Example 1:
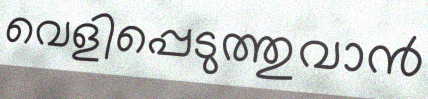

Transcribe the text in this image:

വെളിപ്പെടുത്തുവാൻ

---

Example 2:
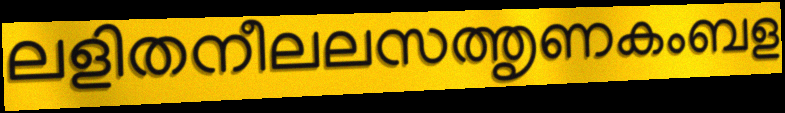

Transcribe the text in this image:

ലളിതനീലലസത്തൃണകംബള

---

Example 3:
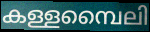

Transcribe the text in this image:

കള്ളമ്പൈലി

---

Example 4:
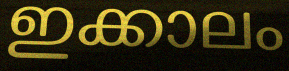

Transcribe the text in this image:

ഇക്കാലം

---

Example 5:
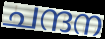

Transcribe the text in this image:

ചന്ദന